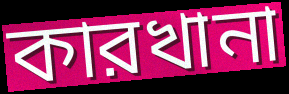
কারখানা